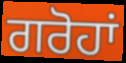
ਗਰੋਹਾਂ